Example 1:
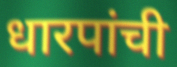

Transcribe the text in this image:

धारपांची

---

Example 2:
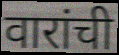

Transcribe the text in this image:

वारांची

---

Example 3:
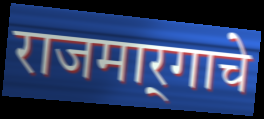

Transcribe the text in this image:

राजमार्गाचे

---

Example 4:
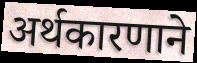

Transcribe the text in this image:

अर्थकारणाने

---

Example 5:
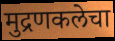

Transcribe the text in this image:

मुद्रणकलेचा